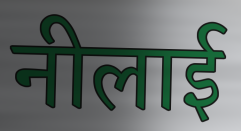
नीलाई